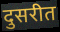
दुसरीत